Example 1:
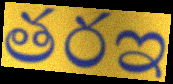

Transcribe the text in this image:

తరఇ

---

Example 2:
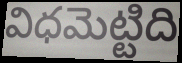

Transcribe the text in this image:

విధమెట్టిది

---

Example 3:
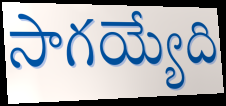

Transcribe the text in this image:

సాగయ్యేది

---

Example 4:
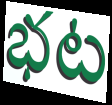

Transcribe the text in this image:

భట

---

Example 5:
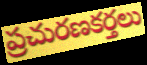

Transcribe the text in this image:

ప్రచురణకర్తలు